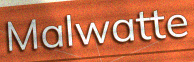
Malwatte